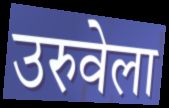
उरुवेला